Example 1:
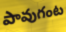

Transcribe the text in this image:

పావుగంట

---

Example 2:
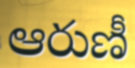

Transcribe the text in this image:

ఆరుణీ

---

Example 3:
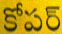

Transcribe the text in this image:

కోపర్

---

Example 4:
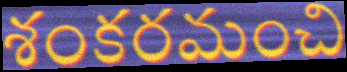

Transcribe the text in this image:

శంకరమంచి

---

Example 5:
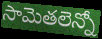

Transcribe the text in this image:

సామెతలెన్నో